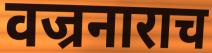
वज्रनाराच